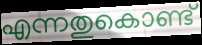
എന്നതുകൊണ്ട്